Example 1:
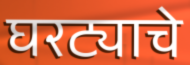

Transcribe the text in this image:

घरट्याचे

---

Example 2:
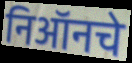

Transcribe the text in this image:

निऑनचे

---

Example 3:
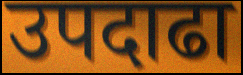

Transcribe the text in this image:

उपदाढा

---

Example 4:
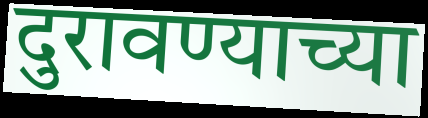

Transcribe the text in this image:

दुरावण्याच्या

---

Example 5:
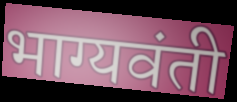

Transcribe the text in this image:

भाग्यवंती